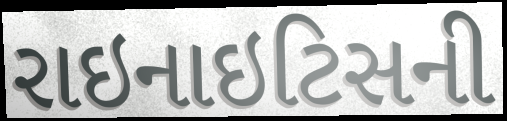
રાઇનાઇટિસની